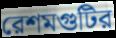
রেশমগুটির